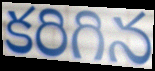
కరిగిన